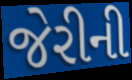
જેરીની